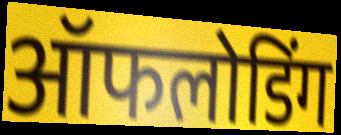
ऑफलोडिंग